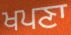
ਖਪਣਾ